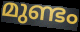
മുണ്ടം